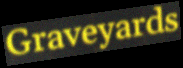
Graveyards